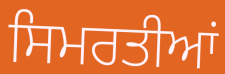
ਸਿਮਰਤੀਆਂ